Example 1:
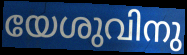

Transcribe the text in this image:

യേശുവിനു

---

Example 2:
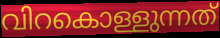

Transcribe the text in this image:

വിറകൊള്ളുന്നത്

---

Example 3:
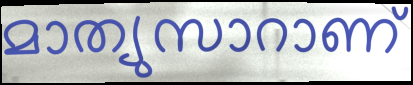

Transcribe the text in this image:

മാത്യുസാറാണ്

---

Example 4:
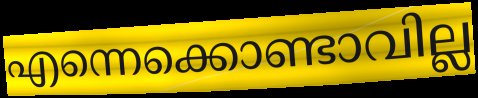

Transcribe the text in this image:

എന്നെക്കൊണ്ടാവില്ല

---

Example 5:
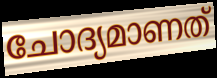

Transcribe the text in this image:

ചോദ്യമാണത്